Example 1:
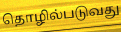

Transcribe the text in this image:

தொழில்படுவது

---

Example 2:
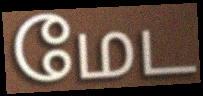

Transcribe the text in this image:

மேட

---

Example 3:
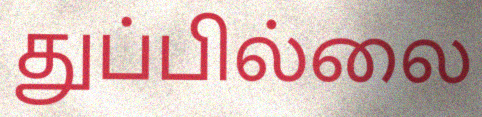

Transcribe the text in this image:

துப்பில்லை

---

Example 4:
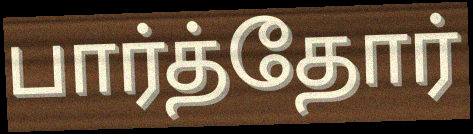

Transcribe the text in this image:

பார்த்தோர்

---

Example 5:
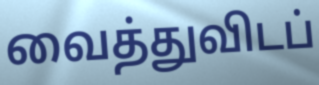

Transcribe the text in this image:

வைத்துவிடப்